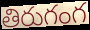
తిరుగంగ